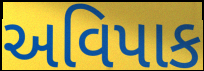
અવિપાક